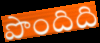
పొందిది